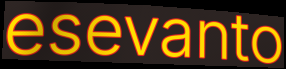
esevanto